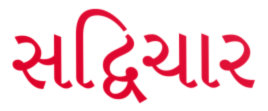
સદ્વિચાર